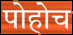
पोहोच